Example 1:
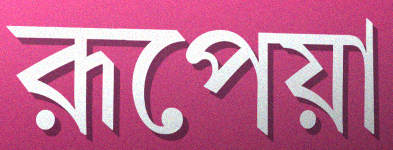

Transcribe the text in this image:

রূপেয়া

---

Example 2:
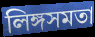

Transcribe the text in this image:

লিঙ্গসমতা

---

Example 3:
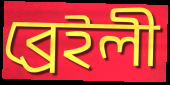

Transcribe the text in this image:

ব্রেইলী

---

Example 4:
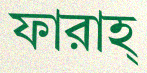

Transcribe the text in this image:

ফারাহ্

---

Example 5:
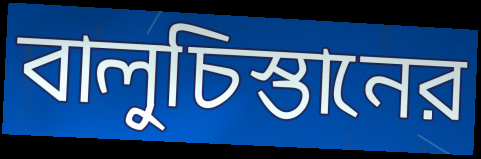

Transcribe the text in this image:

বালুচিস্তানের